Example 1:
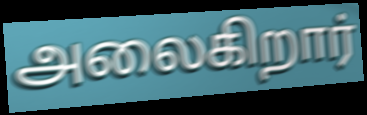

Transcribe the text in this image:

அலைகிறார்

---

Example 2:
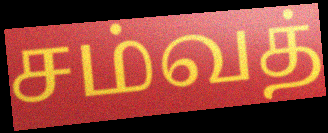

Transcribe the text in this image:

சம்வத்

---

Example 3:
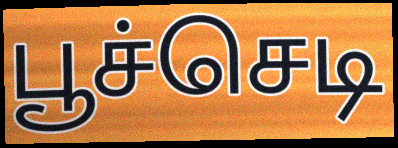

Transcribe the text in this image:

பூச்செடி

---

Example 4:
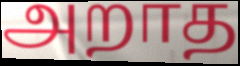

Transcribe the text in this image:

அறாத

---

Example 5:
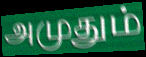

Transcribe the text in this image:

அமுதும்